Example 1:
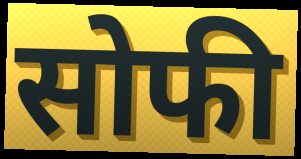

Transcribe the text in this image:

सोफी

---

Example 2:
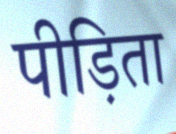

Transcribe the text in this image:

पीड़िता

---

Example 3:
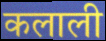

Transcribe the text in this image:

कलाली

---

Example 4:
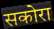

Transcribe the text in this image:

सकोरा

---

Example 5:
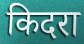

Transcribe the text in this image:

किदरा